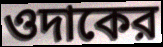
ওদাকের